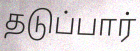
தடுப்பார்